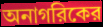
অনাগরিকের